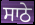
ਸਾਠੇ